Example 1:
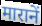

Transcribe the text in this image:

मारानें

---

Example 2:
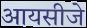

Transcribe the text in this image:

आयसीजे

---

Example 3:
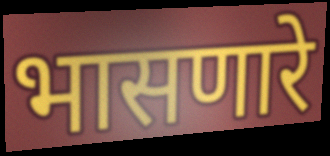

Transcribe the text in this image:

भासणारे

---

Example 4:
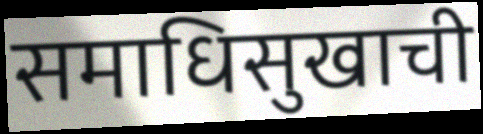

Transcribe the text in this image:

समाधिसुखाची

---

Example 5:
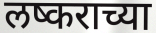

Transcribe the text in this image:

लष्कराच्या